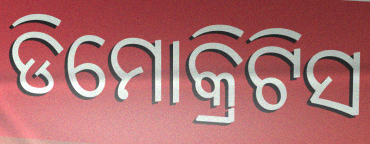
ଡିମୋକ୍ରିଟିସ